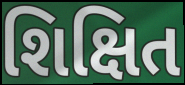
શિક્ષિત